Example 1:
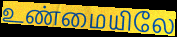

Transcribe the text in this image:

உண்மையிலே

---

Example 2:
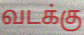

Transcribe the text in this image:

வடக்கு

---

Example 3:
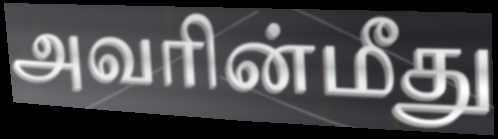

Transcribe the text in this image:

அவரின்மீது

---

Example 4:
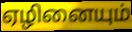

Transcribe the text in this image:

ஏழினையும்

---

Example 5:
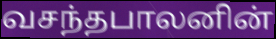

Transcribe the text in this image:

வசந்தபாலனின்